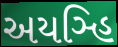
અયઞ્હિ